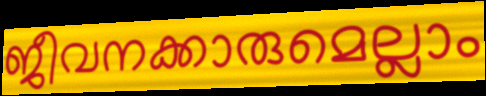
ജീവനക്കാരുമെല്ലാം